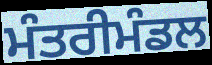
ਮੰਤਰੀਮੰਡਲ